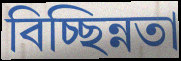
বিচ্ছিন্নতা